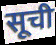
सूची